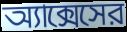
অ্যাক্সেসের